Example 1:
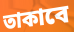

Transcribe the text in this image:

তাকাবে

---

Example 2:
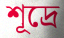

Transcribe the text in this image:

শূদ্রে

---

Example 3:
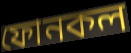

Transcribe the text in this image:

ফোনকল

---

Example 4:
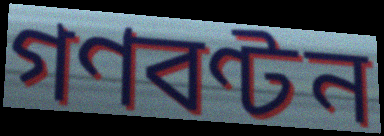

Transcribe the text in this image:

গণবণ্টন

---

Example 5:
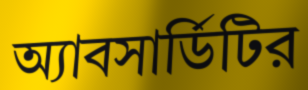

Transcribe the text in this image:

অ্যাবসার্ডিটির